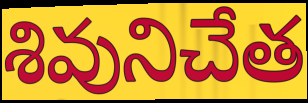
శివునిచేత